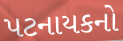
પટનાયકનો